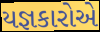
યજ્ઞકારોએ